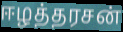
ஈழத்தரசன்